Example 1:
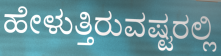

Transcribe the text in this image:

ಹೇಳುತ್ತಿರುವಷ್ಟರಲ್ಲಿ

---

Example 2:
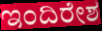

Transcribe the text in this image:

ಇಂದಿರೇಶ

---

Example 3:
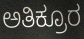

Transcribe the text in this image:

ಅತಿಕ್ರೂರ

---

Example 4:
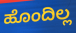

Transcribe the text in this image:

ಹೊಂದಿಲ್ಲ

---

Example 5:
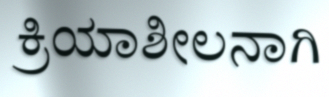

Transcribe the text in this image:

ಕ್ರಿಯಾಶೀಲನಾಗಿ